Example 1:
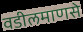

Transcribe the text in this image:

वडीलमाणसे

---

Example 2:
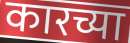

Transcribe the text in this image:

कारच्या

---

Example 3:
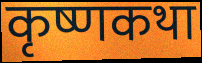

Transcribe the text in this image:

कृष्णकथा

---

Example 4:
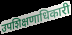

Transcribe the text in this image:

उपशिक्षणाधिकारी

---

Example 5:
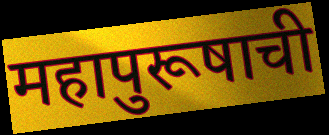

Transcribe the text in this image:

महापुरूषाची